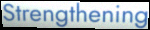
Strengthening